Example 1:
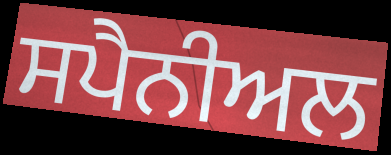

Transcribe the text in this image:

ਸਪੈਨੀਅਲ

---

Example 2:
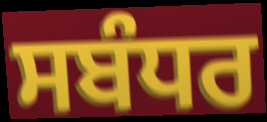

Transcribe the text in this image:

ਸਬੰਧਰ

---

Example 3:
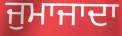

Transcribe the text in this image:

ਜੁਮਾਜਾਦਾ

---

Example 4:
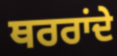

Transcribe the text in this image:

ਥਰਰਾਂਦੇ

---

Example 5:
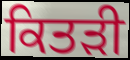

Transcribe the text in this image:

ਕਿਤੜੀ